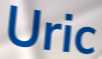
Uric